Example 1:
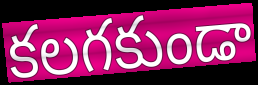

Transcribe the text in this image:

కలగకుండా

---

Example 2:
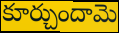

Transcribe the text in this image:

కూర్చుందామె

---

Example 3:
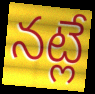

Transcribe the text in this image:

నట్లే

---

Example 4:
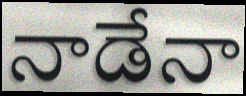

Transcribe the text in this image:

నాడేనా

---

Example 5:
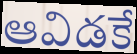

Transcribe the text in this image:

ఆవిడకే